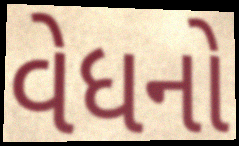
વેધનો